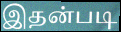
இதன்படி